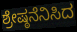
ಶ್ರೇಷ್ಠನೆನಿಸಿದ